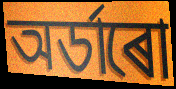
অৰ্ডাৰো